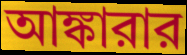
আঙ্কারার